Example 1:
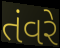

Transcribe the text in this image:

તંવરે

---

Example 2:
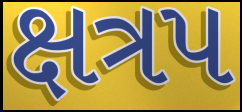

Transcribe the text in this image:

ક્ષત્રપ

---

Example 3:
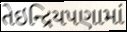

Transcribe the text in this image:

તેઇન્દ્રિયપણામાં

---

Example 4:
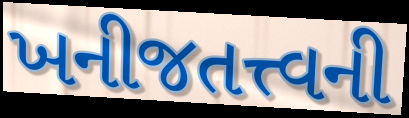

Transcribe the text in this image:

ખનીજતત્ત્વની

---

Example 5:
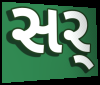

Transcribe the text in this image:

સર્